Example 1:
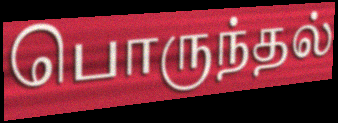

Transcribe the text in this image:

பொருந்தல்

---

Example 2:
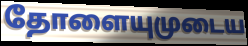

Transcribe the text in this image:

தோளையுமுடைய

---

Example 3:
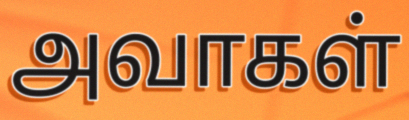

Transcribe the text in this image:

அவாகள்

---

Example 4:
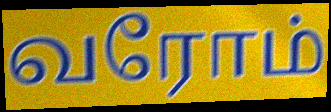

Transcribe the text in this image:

வரோம்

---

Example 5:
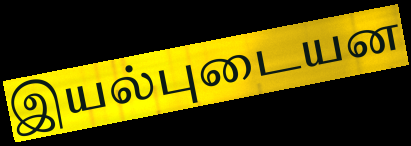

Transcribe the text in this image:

இயல்புடையன